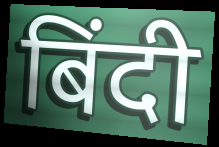
बिंदी